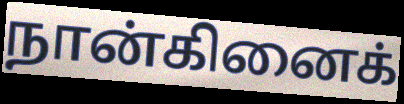
நான்கினைக்